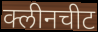
क्लीनचीट